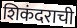
शिकंदराची